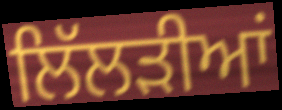
ਲਿੱਲੜੀਆਂ